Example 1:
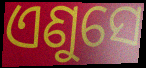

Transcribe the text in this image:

ଏଣୁସେ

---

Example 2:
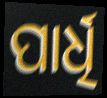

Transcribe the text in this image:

ପାର୍ଧି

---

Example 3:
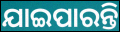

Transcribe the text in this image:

ଯାଇପାରନ୍ତି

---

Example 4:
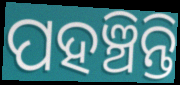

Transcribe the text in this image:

ପହଞ୍ଚିନ୍ତି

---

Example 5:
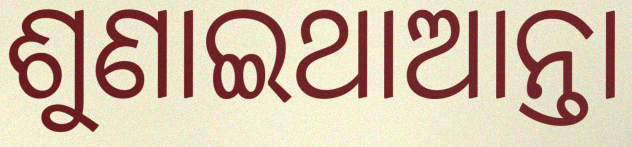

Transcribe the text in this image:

ଶୁଣାଇଥାଆନ୍ତା